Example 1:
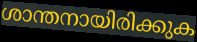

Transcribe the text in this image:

ശാന്തനായിരിക്കുക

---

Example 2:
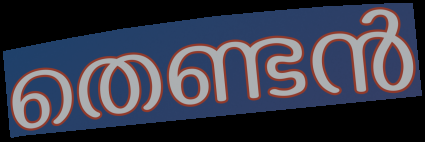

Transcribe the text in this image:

തെണ്ടൻ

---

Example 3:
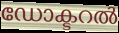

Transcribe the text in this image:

ഡോക്ടറൽ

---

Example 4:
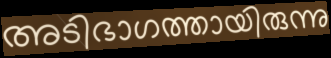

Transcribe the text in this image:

അടിഭാഗത്തായിരുന്നു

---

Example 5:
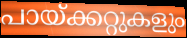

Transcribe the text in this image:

പായ്ക്കറ്റുകളും